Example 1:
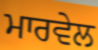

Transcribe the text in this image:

ਮਾਰਵੇਲ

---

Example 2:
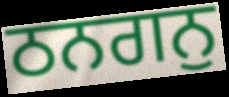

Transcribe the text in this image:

ਠਨਗਨੁ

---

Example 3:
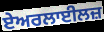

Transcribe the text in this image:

ਏਅਰਲਾਈਲਜ਼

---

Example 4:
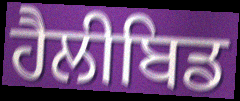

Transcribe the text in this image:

ਹੈਲੀਬਿਡ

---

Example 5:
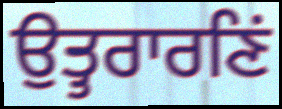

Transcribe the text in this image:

ਉਤ੍ਤਰਾਰਣਿਂ